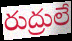
రుద్రులే